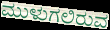
ಮುಳುಗಲಿರುವ